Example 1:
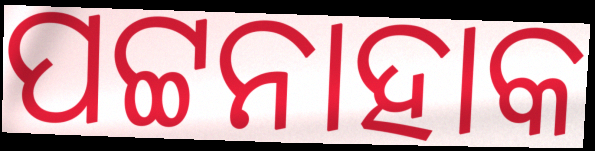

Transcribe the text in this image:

ପଟ୍ଟନାହାକ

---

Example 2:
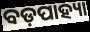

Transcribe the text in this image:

ବଡ଼ପାହ୍ୟା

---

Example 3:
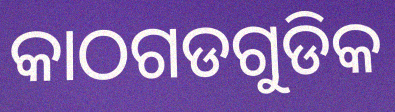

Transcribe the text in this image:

କାଠଗଡଗୁଡିକ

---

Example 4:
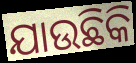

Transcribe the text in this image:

ଯାଉଛିକି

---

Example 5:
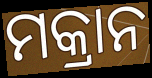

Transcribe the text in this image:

ମକ୍ରାନ